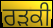
ਰੜਕੀ